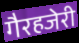
गैरहजेरी